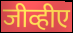
जीव्हीए